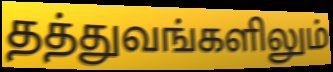
தத்துவங்களிலும்